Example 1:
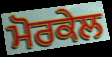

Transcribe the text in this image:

ਮੋਰਕੇਲ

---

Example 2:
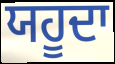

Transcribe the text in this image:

ਯਹੂਦਾ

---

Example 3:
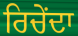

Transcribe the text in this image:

ਰਿਚੇਂਦਾ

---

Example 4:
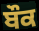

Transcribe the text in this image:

ਬੌਕ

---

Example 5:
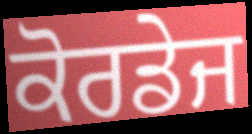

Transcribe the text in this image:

ਕੋਰਡੇਜ